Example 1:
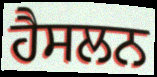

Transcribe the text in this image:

ਹੈਸਲਨ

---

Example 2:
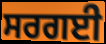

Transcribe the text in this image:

ਸਰਗਈ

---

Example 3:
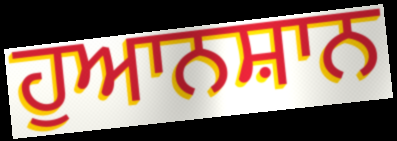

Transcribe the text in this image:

ਹੁਆਨਸ਼ਾਨ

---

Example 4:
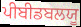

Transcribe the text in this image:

ਪੀਬੀਡਬਲਯੂ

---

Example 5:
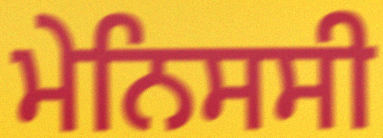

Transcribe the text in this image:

ਮੇਨਿਸਸੀ